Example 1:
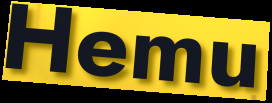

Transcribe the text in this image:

Hemu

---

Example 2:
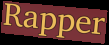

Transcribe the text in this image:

Rapper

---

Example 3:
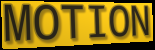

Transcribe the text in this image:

MOTION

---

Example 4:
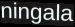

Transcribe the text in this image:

ningala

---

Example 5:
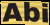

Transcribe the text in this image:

Abi